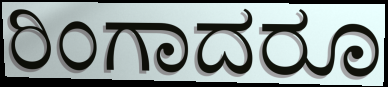
ರಿಂಗಾದರೂ